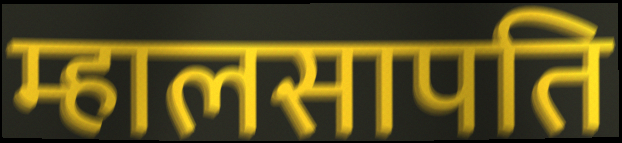
म्हालसापति